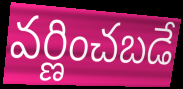
వర్ణించబడే